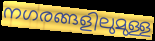
നഗരങ്ങളിലുമുള്ള